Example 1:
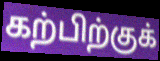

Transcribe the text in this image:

கற்பிற்குக்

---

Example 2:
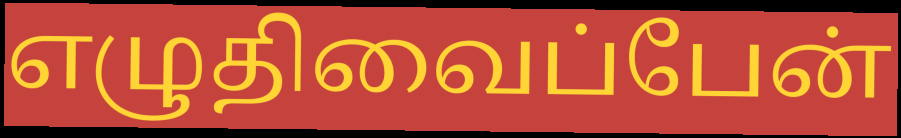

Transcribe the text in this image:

எழுதிவைப்பேன்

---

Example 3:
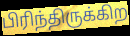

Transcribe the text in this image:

பிரிந்திருக்கிற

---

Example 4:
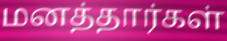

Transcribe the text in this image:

மனத்தார்கள்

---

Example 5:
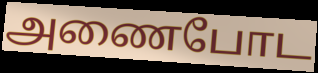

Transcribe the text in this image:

அணைபோட